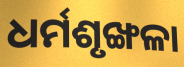
ଧର୍ମଶୃଙ୍ଖଳା